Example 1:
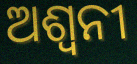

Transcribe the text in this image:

ଅଶ୍ୱନୀ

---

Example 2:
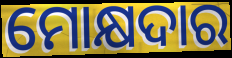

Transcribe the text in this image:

ମୋକ୍ଷଦାର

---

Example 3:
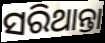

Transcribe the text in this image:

ସରିଥାନ୍ତା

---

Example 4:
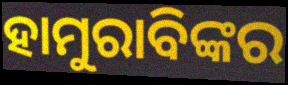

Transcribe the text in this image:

ହାମୁରାବିଙ୍କର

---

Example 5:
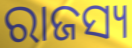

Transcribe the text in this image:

ରାଜସ୍ୟ